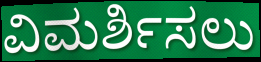
ವಿಮರ್ಶಿಸಲು